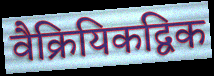
वैक्रियिकद्विक